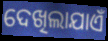
ଦେଖିଲାଯାଏଁ